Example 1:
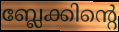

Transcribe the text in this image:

ബ്ലേക്കിന്റെ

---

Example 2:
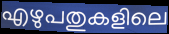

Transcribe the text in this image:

എഴുപതുകളിലെ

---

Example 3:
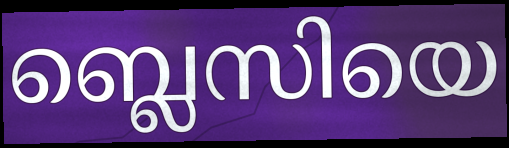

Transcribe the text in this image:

ബ്ലെസിയെ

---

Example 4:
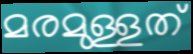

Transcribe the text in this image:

മരമുള്ളത്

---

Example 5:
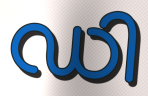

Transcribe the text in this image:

ഡി